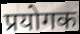
प्रयोगक